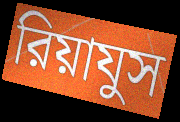
রিয়াযুস